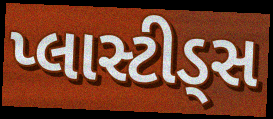
પ્લાસ્ટીડ્સ